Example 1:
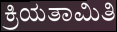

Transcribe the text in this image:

ಕ್ರಿಯತಾಮಿತಿ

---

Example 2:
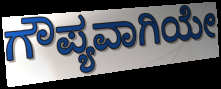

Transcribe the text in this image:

ಗೌಪ್ಯವಾಗಿಯೇ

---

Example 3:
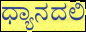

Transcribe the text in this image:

ಧ್ಯಾನದಲಿ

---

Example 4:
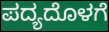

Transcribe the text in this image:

ಪದ್ಯದೊಳಗೆ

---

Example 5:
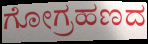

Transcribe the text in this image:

ಗೋಗ್ರಹಣದ